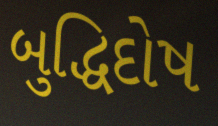
બુદ્ધિદોષ